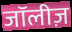
जॉलीज़